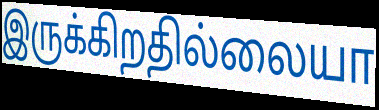
இருக்கிறதில்லையா